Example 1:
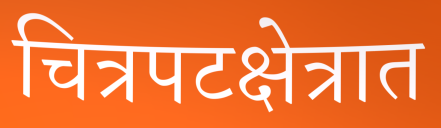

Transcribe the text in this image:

चित्रपटक्षेत्रात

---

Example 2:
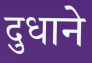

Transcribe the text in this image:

दुधाने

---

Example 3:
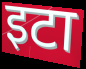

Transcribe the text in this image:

इटा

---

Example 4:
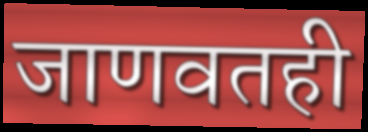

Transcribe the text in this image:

जाणवतही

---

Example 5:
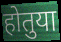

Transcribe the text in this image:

होतुया